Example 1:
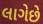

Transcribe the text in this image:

લાગેછે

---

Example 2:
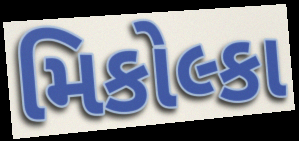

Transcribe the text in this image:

મિકોલ્કા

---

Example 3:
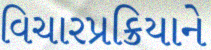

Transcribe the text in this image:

વિચારપ્રક્રિયાને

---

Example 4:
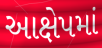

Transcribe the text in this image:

આક્ષેપમાં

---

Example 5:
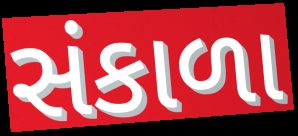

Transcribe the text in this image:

સંકાળા